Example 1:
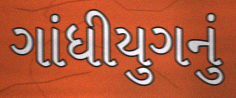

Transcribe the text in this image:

ગાંધીયુગનું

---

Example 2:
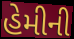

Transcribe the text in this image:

હેમીની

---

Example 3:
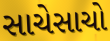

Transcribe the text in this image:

સાચેસાચો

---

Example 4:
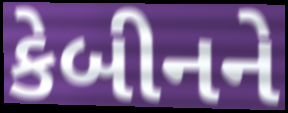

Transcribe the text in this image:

કેબીનને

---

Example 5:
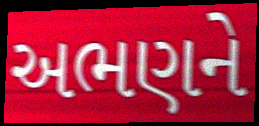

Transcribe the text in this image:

અભણને